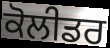
ਕੋਲੀਡਰ